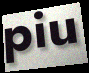
piu